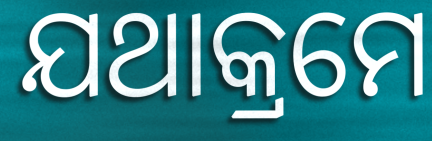
ଯଥାକ୍ରମେ